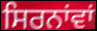
ਸਿਰਨਾਂਵਾਂ